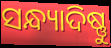
ସନ୍ଧ୍ୟାଦିଷ୍ଣୁ